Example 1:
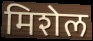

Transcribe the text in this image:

मिशेल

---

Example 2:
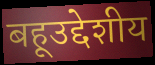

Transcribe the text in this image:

बहूउद्देशीय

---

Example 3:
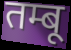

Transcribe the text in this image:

तम्बू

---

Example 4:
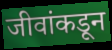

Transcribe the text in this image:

जीवांकडून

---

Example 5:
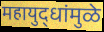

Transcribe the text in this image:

महायुद्धांमुळे